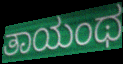
ತಾಯಂಥ